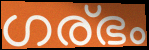
ഗര്ഭം